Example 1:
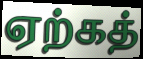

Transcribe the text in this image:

ஏற்கத்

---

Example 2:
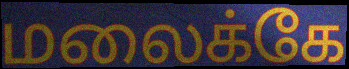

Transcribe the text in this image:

மலைக்கே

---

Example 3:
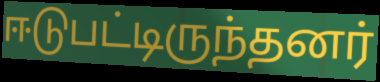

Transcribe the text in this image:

ஈடுபட்டிருந்தனர்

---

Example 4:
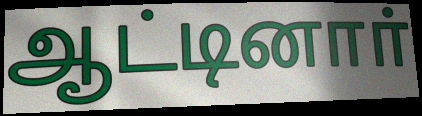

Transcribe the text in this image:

ஆட்டினார்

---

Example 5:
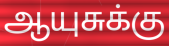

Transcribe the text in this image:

ஆயுசுக்கு